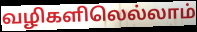
வழிகளிலெல்லாம்